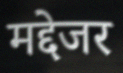
मद्देजर